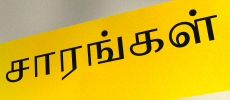
சாரங்கள்